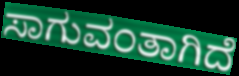
ಸಾಗುವಂತಾಗಿದೆ